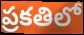
ప్రకతిలో